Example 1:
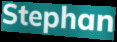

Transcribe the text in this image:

Stephan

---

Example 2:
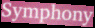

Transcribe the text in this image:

Symphony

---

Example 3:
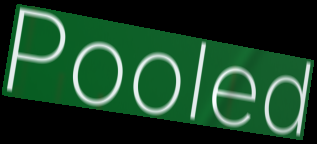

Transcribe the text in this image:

Pooled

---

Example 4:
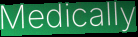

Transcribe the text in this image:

Medically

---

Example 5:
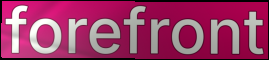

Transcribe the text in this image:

forefront